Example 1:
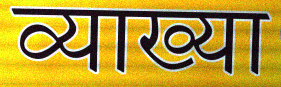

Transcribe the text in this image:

व्याख्या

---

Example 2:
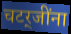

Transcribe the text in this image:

चटर्जींना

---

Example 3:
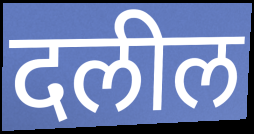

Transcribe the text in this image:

दलील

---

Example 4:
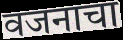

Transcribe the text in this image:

वजनाचा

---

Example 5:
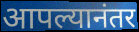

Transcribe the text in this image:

आपल्यानंतर